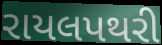
રાયલપથરી